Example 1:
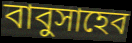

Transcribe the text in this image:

বাবুসাহেব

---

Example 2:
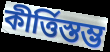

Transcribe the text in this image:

কীর্ত্তিস্তম্ভ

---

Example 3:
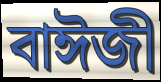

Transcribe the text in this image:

বাঈজী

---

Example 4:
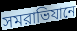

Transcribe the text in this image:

সমরাভিযানে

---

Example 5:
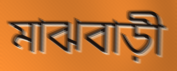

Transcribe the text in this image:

মাঝবাড়ী